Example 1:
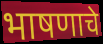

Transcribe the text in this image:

भाषणाचे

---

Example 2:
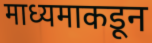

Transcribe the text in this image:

माध्यमाकडून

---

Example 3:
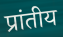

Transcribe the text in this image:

प्रांतीय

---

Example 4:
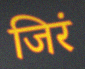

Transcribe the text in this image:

जिरं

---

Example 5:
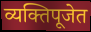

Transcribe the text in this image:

व्यक्तिपूजेत